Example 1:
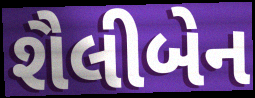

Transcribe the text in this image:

શૈલીબેન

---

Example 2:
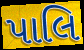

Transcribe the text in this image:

પાલિ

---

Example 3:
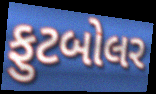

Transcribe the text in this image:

ફુટબોલર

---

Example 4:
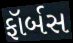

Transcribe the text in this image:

ફૉર્બસ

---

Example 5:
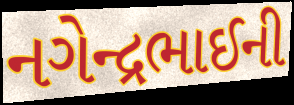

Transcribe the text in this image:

નગેન્દ્રભાઈની